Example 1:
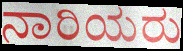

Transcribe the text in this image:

ನಾರಿಯರು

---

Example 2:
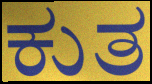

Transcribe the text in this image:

ಕುತ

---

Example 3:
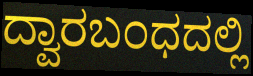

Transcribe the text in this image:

ದ್ವಾರಬಂಧದಲ್ಲಿ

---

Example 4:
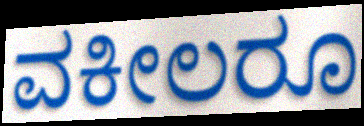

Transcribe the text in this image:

ವಕೀಲರೂ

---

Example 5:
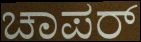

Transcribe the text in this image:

ಚಾಪರ್